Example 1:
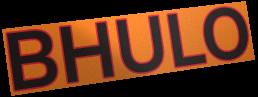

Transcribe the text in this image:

BHULO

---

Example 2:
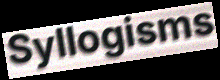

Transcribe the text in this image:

Syllogisms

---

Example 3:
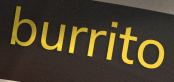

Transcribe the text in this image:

burrito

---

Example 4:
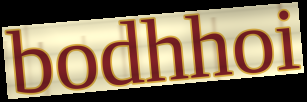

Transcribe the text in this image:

bodhhoi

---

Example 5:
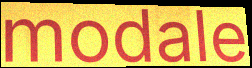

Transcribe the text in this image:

modale